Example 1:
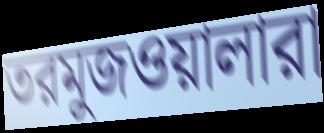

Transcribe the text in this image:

তরমুজওয়ালারা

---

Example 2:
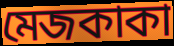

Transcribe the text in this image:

মেজকাকা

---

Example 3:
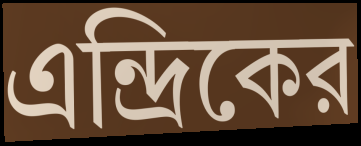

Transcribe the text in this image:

এন্দ্রিকের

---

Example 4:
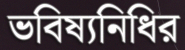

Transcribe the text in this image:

ভবিষ্যনিধির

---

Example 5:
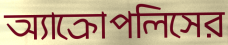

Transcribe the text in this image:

অ্যাক্রোপলিসের